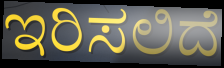
ಇರಿಸಲಿದೆ